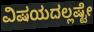
ವಿಷಯದಲ್ಲಷ್ಟೇ